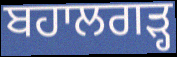
ਬਹਾਲਗੜ੍ਹ